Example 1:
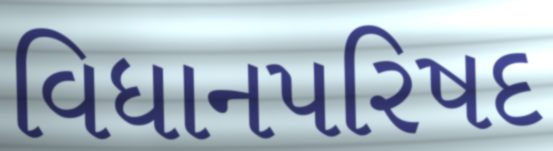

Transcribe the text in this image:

વિધાનપરિષદ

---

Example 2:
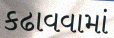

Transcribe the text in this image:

કઢાવવામાં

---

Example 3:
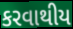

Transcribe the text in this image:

કરવાથીય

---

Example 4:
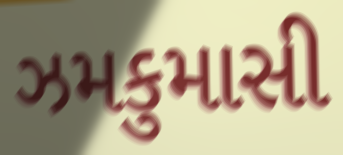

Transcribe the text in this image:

ઝમકુમાસી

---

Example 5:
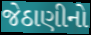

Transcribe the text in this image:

જેઠાણીનો